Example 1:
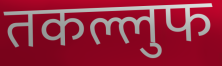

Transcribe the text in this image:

तकल्लुफ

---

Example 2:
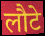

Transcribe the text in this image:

लौटे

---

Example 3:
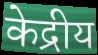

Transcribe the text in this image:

केद्रीय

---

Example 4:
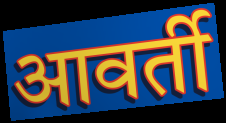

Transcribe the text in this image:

आवर्ती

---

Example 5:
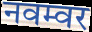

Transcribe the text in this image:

नवम्वर